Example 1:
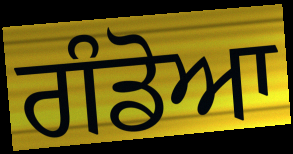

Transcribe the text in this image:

ਗੰਡੋਆ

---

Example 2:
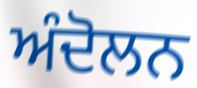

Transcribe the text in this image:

ਅੰਦੋਲਨ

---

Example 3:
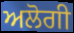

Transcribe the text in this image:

ਅਲੋਗੀ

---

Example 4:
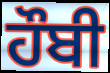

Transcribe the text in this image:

ਹੌਬੀ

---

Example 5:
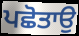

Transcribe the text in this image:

ਪਛੋਤਾਉ